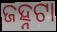
ଜହ୍ନଟା